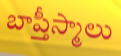
బాప్తీస్మాలు